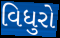
વિધુરો